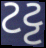
ટટ્ટ